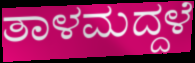
ತಾಳಮದ್ದಳೆ